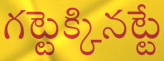
గట్టెక్కినట్టే